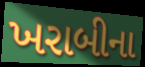
ખરાબીના